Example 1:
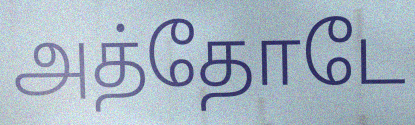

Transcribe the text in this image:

அத்தோடே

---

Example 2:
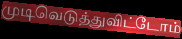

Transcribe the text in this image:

முடிவெடுத்துவிட்டோம்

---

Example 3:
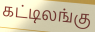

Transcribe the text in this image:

கட்டிலங்கு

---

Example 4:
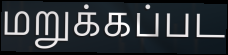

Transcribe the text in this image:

மறுக்கப்பட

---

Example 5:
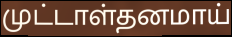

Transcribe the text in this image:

முட்டாள்தனமாய்